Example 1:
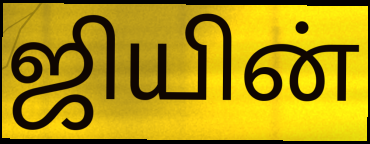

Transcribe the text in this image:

ஜியின்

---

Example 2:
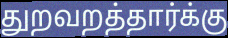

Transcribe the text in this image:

துறவறத்தார்க்கு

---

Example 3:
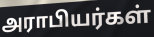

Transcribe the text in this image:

அராபியர்கள்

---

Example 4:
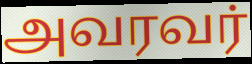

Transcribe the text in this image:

அவரவர்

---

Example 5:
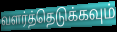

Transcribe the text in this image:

வளர்த்தெடுக்கவும்